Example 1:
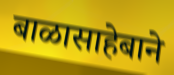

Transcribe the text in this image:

बाळासाहेबाने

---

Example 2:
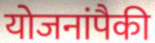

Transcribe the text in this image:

योजनांपैकी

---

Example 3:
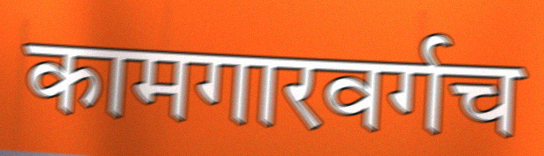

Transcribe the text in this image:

कामगारवर्गच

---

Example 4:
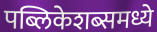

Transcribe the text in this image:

पब्लिकेशब्समध्ये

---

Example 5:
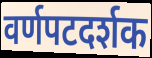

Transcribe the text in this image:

वर्णपटदर्शक